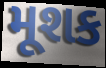
મૂશક